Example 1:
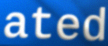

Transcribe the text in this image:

ated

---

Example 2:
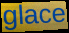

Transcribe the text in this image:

glace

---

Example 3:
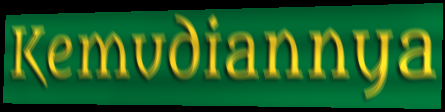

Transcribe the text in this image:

Kemudiannya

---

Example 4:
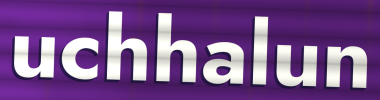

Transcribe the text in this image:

uchhalun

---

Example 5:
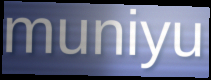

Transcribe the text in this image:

muniyu